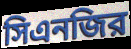
সিএনজির